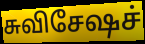
சுவிசேஷச்